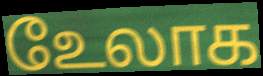
உேலாக